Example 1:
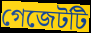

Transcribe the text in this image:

গেজেটটি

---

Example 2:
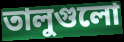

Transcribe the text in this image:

তালুগুলো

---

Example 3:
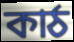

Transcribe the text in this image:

কাঠ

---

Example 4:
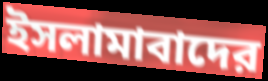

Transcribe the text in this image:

ইসলামাবাদের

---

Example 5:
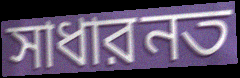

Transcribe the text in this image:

সাধারনত